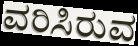
ವರಿಸಿರುವ